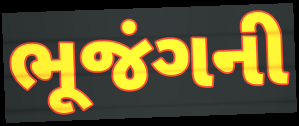
ભૂજંગની